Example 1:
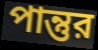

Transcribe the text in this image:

পান্তুর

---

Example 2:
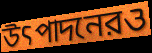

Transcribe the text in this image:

উৎপাদনেরও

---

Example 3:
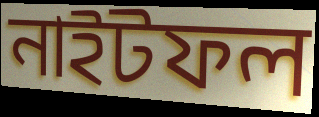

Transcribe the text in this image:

নাইটফল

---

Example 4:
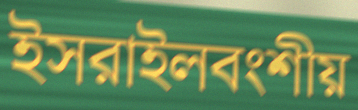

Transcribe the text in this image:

ইসরাইলবংশীয়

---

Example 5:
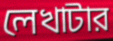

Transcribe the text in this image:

লেখাটার